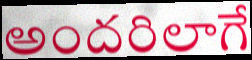
అందరిలాగే